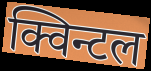
क्विन्टल